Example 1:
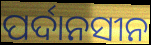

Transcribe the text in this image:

ପର୍ଦାନସୀନ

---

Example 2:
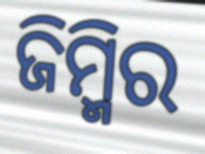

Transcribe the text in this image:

ଜିମ୍ମିର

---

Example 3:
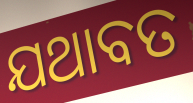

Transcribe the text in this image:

ଯଥାବତ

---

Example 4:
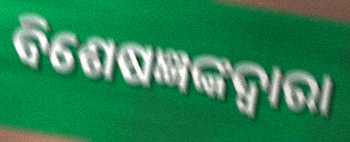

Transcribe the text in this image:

ବିଶେଷଜ୍ଞଙ୍କଦ୍ୱାରା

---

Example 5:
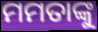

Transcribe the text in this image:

ମମତାଙ୍କୁ